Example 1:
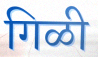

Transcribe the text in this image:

गिळी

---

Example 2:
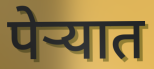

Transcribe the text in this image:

पेऱ्यात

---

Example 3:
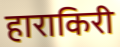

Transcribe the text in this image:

हाराकिरी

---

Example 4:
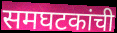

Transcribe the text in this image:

समघटकांची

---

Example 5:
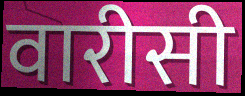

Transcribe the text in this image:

वारीसी